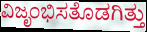
ವಿಜೃಂಭಿಸತೊಡಗಿತ್ತು